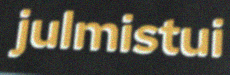
julmistui